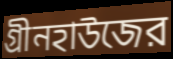
গ্রীনহাউজের